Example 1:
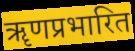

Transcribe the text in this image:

ॠणप्रभारित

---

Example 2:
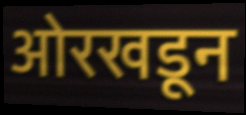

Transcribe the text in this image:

ओरखडून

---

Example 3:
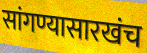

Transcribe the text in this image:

सांगण्यासारखंच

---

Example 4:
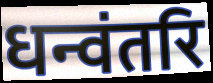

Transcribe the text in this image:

धन्वंतरि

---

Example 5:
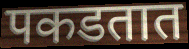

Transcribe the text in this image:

पकडतात